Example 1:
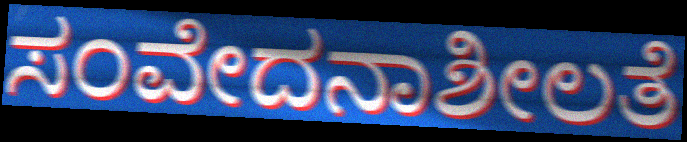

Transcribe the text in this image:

ಸಂವೇದನಾಶೀಲತೆ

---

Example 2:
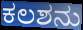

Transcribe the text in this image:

ಕಲಶನು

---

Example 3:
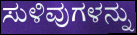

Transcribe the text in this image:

ಸುಳಿವುಗಳನ್ನು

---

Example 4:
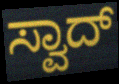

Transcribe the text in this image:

ಸ್ವಾದ್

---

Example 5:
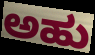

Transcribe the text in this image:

ಅಹು